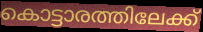
കൊട്ടാരത്തിലേക്ക്